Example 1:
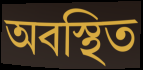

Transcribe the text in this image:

অবস্থিত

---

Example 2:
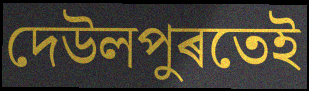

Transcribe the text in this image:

দেউলপুৰতেই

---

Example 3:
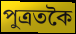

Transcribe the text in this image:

পুত্ৰতকৈ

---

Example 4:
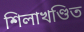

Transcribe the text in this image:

শিলাখণ্ডিত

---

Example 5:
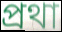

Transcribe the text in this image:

প্ৰথা